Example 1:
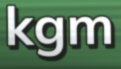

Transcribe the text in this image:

kgm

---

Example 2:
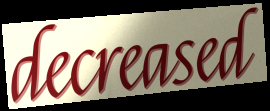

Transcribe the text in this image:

decreased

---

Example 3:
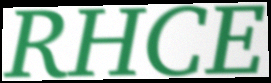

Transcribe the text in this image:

RHCE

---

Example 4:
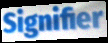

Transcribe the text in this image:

Signifier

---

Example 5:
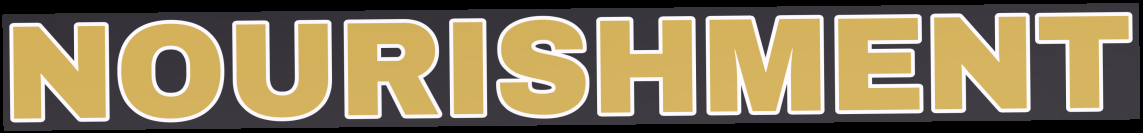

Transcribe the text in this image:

NOURISHMENT